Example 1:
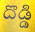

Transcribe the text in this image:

దొడ్డి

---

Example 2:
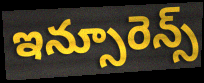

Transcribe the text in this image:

ఇన్సూరెన్స్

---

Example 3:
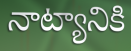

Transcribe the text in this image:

నాట్యానికి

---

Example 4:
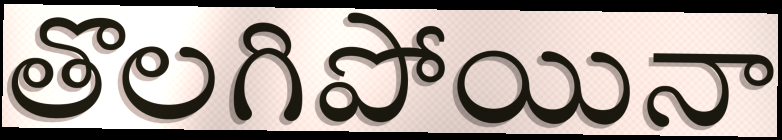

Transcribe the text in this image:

తొలగిపోయినా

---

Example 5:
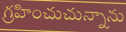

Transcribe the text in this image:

గ్రహించుచున్నాను